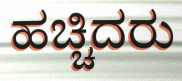
ಹಚ್ಚಿದರು